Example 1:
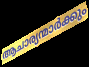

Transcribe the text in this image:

ആചാര്യന്മാർക്കും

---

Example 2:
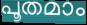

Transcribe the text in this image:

പൂതമാം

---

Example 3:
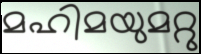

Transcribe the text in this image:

മഹിമയുമറ്റു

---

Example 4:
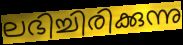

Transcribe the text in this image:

ലഭിച്ചിരിക്കുന്നു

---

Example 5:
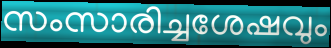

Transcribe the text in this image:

സംസാരിച്ചശേഷവും